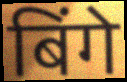
बिंगे